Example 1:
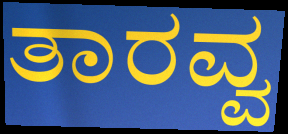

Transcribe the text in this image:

ತಾರವ್ವ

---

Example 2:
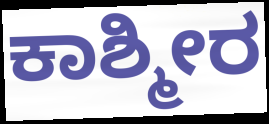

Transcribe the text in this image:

ಕಾಶ್ಮೀರ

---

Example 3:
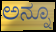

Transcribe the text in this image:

ಅನ್ನೂ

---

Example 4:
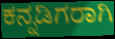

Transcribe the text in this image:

ಕನ್ನಡಿಗರಾಗಿ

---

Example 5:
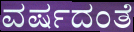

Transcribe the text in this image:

ವರ್ಷದಂತೆ